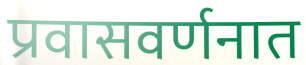
प्रवासवर्णनात